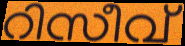
റിസീവ്